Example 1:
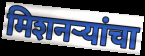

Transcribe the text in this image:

मिशनऱ्यांचा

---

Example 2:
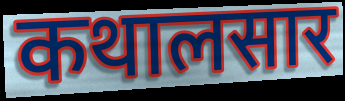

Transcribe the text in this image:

कथालसार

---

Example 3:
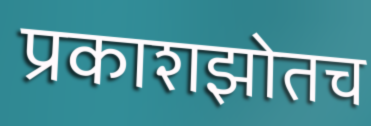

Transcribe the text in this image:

प्रकाशझोतच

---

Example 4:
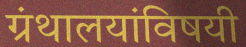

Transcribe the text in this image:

ग्रंथालयांविषयी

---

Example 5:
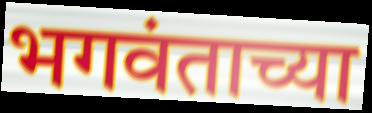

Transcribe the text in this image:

भगवंताच्या